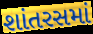
શાંતરસમાં